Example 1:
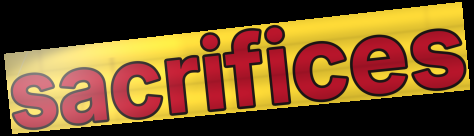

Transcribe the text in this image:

sacrifices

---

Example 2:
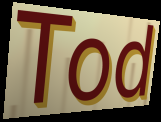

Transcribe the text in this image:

Tod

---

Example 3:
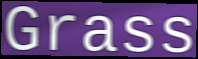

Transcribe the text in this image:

Grass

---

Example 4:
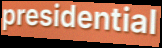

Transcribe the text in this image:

presidential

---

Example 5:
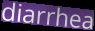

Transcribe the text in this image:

diarrhea